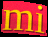
mi